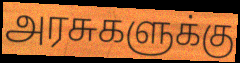
அரசுகளுக்கு